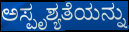
ಅಸ್ಪೃಶ್ಯತೆಯನ್ನು